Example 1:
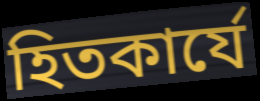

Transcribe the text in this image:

হিতকার্যে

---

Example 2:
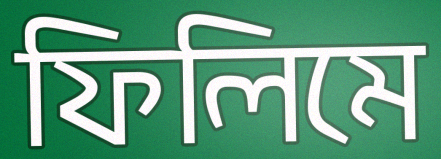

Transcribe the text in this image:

ফিলিমে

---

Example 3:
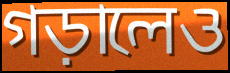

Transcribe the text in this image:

গড়ালেও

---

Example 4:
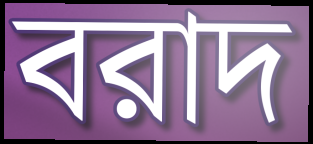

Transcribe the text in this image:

বরাদ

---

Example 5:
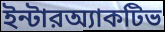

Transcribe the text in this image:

ইন্টারঅ্যাকটিভ